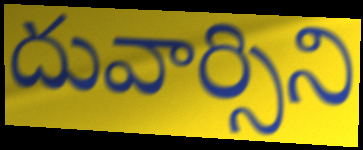
దువార్సిని